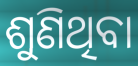
ଶୁଣିଥିବା